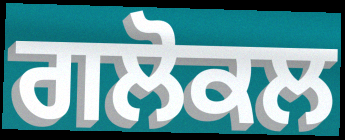
ਗਲੋਕਲ